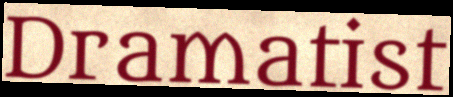
Dramatist